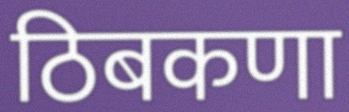
ठिबकणा